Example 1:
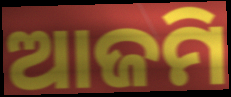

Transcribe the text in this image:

ଆଜମି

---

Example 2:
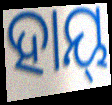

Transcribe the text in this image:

ହାୟ୍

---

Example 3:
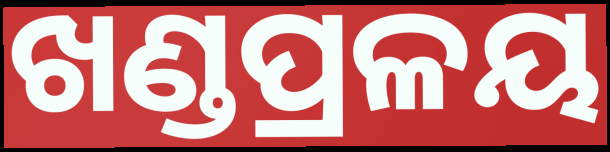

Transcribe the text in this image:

ଖଣ୍ଡପ୍ରଳୟ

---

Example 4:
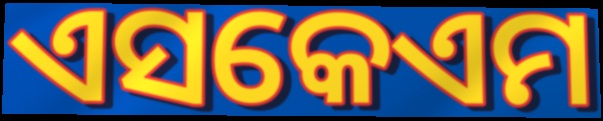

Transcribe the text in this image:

ଏସକେଏମ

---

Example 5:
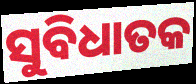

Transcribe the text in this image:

ସୁବିଧାତକ